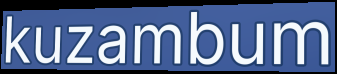
kuzambum